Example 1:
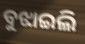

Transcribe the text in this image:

ବୁଝାଇଲି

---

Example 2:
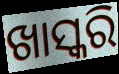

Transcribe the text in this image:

ଖାସ୍କରି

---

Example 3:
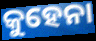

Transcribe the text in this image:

କୁହେନା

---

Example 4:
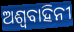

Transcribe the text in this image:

ଅଶ୍ୱବାହିନୀ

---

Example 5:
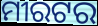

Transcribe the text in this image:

ମୀରଟର